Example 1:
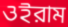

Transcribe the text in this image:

ওইরাম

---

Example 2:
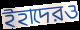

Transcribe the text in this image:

ইহাদেরও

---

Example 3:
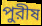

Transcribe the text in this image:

পুরীষ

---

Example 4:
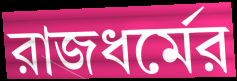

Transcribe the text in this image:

রাজধর্মের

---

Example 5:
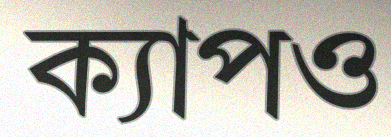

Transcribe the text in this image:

ক্যাপও